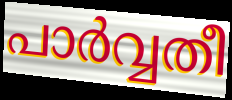
പാർവ്വതീ